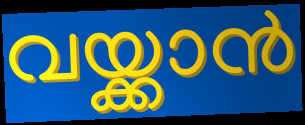
വയ്ക്കാൻ